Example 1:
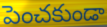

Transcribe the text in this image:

పెంచకుండా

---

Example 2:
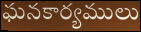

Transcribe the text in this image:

ఘనకార్యములు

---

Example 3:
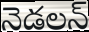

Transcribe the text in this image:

నెడలన్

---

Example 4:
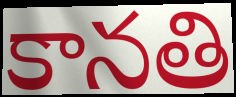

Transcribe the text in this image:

కానతి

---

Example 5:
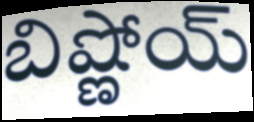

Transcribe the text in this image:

బిష్ణోయ్